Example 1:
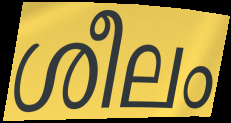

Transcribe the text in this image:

ശീലം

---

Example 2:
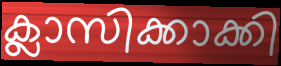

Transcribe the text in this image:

ക്ലാസിക്കാക്കി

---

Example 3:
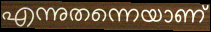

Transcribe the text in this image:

എന്നുതന്നെയാണ്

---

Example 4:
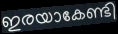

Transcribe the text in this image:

ഇരയാകേണ്ടി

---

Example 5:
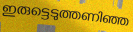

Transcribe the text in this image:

ഇരുട്ടെടുത്തണിഞ്ഞ